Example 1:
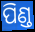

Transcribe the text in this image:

ପିଣ୍ଡ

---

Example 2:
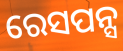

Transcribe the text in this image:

ରେସପନ୍ସ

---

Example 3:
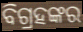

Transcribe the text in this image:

ବିଗ୍ରହଙ୍କର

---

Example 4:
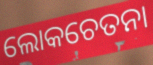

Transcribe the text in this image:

ଲୋକଚେତନା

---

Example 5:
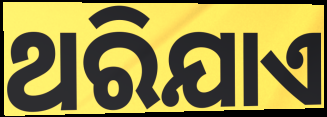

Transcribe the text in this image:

ଥରିଯାଏ